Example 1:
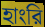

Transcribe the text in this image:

হাংরি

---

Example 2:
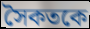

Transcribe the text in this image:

সৈকতকে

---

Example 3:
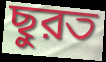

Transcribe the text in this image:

ছুরত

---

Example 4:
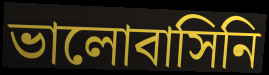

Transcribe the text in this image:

ভালোবাসিনি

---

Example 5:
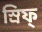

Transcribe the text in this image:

স্রিফ্